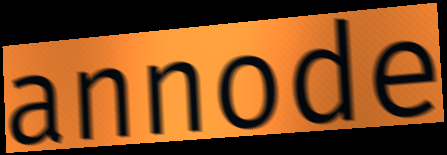
annode